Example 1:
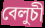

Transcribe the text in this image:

বেলুচী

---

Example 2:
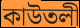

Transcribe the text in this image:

কাউতলী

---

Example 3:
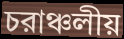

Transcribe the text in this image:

চরাঞ্চলীয়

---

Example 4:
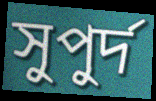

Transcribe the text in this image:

সুপুর্দ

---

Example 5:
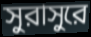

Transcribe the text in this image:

সুরাসুরে